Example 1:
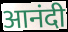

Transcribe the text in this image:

आनंदी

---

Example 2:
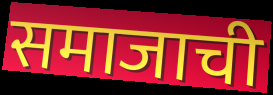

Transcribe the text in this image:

समाजाची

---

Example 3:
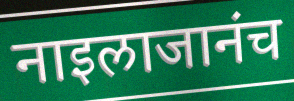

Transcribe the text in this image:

नाइलाजानंच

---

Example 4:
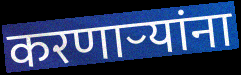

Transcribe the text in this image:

करणाऱ्यांना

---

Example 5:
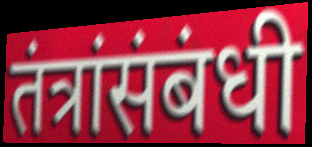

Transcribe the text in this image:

तंत्रांसंबंधी